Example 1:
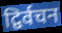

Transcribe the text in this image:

द्विर्वचन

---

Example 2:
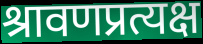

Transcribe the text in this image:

श्रावणप्रत्यक्ष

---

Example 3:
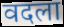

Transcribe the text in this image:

वदला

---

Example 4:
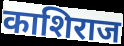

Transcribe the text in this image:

काशिराज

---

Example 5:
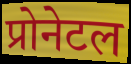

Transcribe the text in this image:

प्रोनेटल